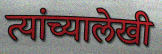
त्यांच्यालेखी